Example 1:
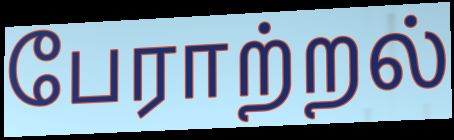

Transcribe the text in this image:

பேராற்றல்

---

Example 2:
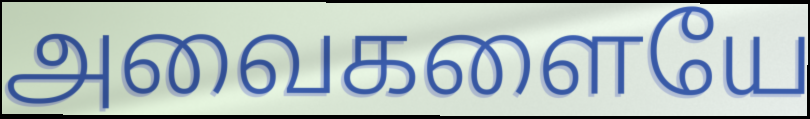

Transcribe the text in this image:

அவைகளையே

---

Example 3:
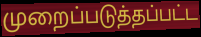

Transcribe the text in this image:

முறைப்படுத்தப்பட்ட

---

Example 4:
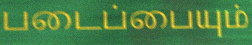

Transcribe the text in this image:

படைப்பையும்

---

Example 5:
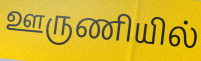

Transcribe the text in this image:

ஊருணியில்